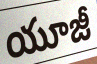
యూజీ